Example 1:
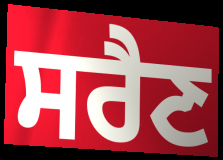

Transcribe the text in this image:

ਸਰੈਣ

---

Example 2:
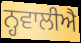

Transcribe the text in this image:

ਨ੍ਹਵਾਲੀਐ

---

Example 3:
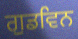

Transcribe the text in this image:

ਗੁਡਵਿਨ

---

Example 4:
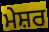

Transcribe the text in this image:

ਮੇਸ਼ਰ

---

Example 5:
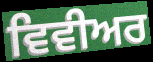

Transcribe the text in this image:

ਵਿਵੀਅਰ